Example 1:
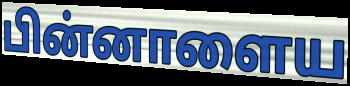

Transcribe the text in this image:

பின்னாளைய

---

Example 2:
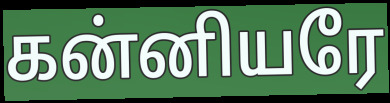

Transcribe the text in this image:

கன்னியரே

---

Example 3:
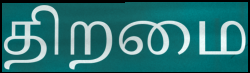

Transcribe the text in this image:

திறமை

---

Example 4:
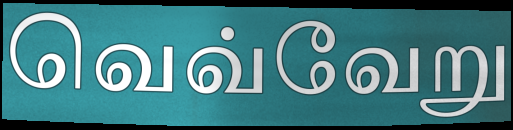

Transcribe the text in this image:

வெவ்வேறு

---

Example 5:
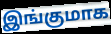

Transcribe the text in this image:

இங்குமாக